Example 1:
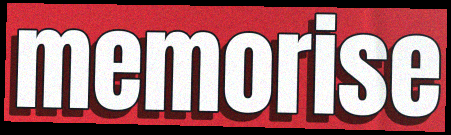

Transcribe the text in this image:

memorise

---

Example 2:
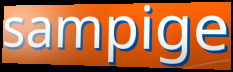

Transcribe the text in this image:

sampige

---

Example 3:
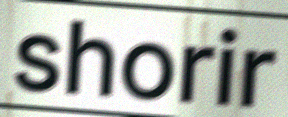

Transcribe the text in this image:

shorir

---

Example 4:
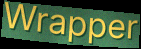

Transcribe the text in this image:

Wrapper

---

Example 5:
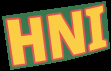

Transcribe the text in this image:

HNI